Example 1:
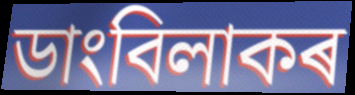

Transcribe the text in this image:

ডাংবিলাকৰ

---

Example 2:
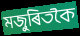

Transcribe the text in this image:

মজুৰিতকৈ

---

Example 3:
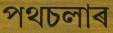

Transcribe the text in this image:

পথচলাৰ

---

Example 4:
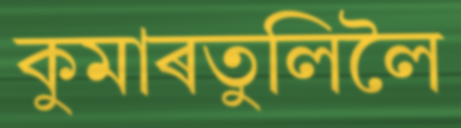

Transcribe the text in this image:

কুমাৰতুলিলৈ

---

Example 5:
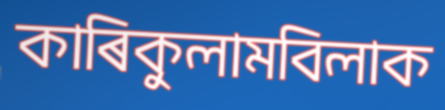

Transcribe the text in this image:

কাৰিকুলামবিলাক